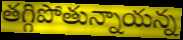
తగ్గిపోతున్నాయన్న